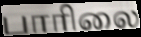
பாரிலை